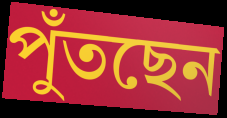
পুঁতছেন